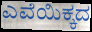
ಎವೆಯಿಕ್ಕದ